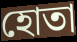
হোতা